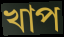
খাপ